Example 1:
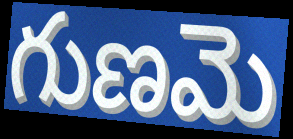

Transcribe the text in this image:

గుణమె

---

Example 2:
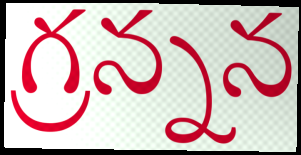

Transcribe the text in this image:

గ్రన్నన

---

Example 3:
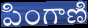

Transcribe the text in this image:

పింగాణి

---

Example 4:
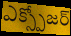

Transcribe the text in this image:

ఎక్స్పోజర్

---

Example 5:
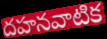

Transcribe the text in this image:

దహనవాటిక